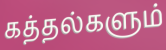
கத்தல்களும்